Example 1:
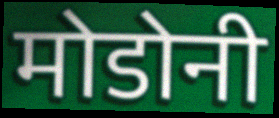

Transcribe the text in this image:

मोडोनी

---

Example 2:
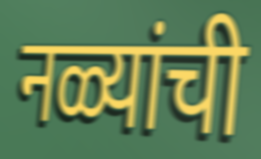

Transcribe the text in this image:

नळ्यांची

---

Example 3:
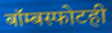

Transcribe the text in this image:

बॉम्बस्फोटही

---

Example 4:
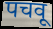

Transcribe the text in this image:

पचवू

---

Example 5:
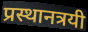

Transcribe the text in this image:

प्रस्थानत्रयी